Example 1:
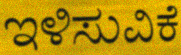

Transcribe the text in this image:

ಇಳಿಸುವಿಕೆ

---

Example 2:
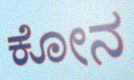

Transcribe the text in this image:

ಕೋನ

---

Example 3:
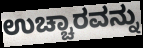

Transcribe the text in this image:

ಉಚ್ಚಾರವನ್ನು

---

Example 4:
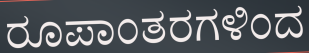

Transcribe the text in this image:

ರೂಪಾಂತರಗಳಿಂದ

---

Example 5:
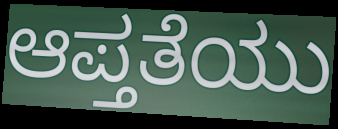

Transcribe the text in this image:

ಆಪ್ತತೆಯು